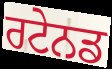
ਰਟੇਨਡ